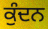
ਕੁੰਦਨ